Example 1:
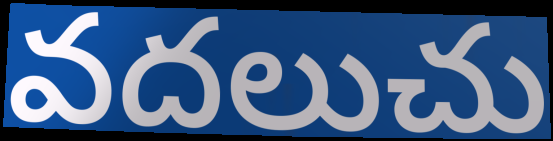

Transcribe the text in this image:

వదలుచు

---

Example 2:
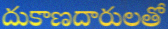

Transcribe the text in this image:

దుకాణదారులతో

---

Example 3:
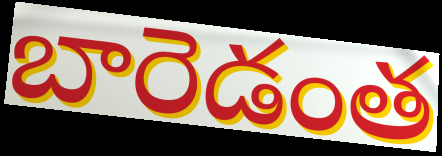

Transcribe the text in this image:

బారెడంత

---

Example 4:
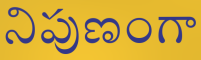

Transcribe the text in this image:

నిపుణంగా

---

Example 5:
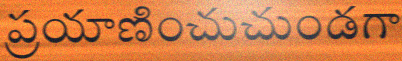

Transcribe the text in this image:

ప్రయాణించుచుండగా